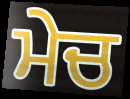
ਮੇਚ